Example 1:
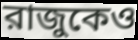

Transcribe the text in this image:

রাজুকেও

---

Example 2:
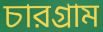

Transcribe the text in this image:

চারগ্রাম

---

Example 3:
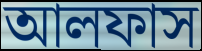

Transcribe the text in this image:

আলফাস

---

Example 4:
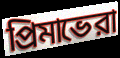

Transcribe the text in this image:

প্রিমাভেরা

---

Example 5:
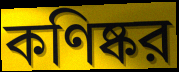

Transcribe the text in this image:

কণিষ্কর